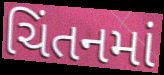
ચિંતનમાં